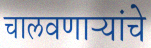
चालवणाऱ्यांचे